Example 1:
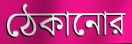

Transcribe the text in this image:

ঠেকানোর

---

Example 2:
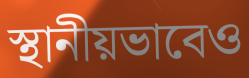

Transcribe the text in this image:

স্থানীয়ভাবেও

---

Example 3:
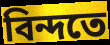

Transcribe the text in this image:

বিন্দতে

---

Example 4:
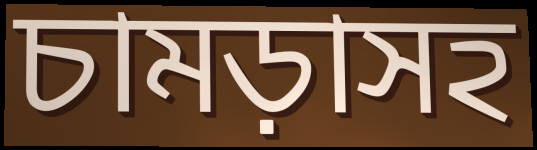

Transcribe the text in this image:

চামড়াসহ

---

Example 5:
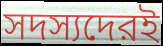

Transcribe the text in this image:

সদস্যদেরই